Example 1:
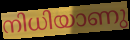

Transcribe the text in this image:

നിധിയാണു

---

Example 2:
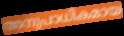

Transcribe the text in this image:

അനുപാധികമായ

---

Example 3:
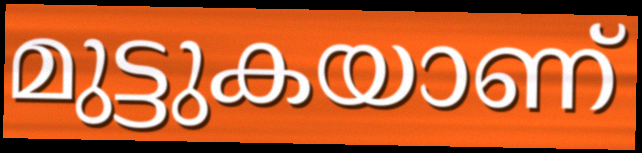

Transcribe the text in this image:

മുട്ടുകയാണ്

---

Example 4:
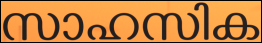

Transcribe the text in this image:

സാഹസിക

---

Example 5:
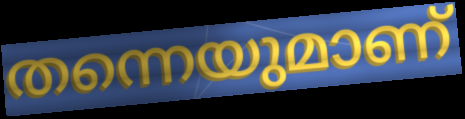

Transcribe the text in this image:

തന്നെയുമാണ്